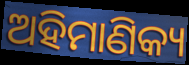
ଅହିମାଣିକ୍ୟ